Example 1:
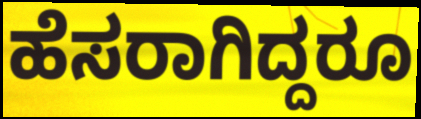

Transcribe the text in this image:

ಹೆಸರಾಗಿದ್ದರೂ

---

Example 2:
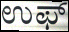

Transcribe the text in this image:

ಉಫ್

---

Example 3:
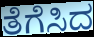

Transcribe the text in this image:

ತೆಗೆಸಿದ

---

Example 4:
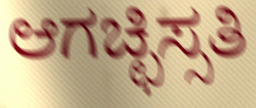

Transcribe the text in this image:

ಆಗಚ್ಛಿಸ್ಸತಿ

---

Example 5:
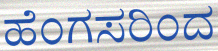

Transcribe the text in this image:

ಹೆಂಗಸರಿಂದ